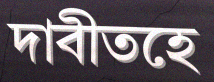
দাবীতহে